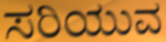
ಸರಿಯುವ